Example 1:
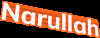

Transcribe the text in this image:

Narullah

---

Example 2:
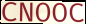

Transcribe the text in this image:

CNOOC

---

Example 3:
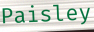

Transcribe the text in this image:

Paisley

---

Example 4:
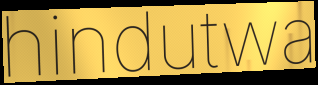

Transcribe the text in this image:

hindutwa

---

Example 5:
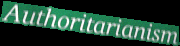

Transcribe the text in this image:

Authoritarianism